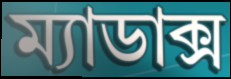
ম্যাডাক্স